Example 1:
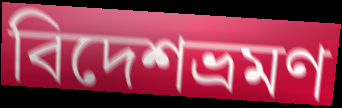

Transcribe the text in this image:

বিদেশভ্রমণ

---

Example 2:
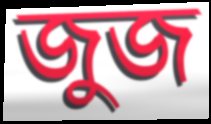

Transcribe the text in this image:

জুজ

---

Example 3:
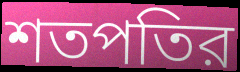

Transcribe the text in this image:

শতপতির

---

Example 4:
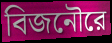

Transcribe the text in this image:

বিজনৌরে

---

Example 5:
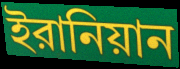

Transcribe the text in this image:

ইরানিয়ান